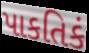
પાકતિકં